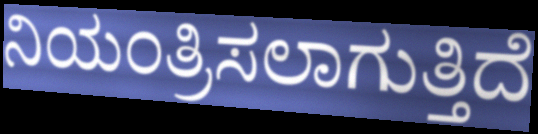
ನಿಯಂತ್ರಿಸಲಾಗುತ್ತಿದೆ